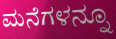
ಮನೆಗಳನ್ನೂ